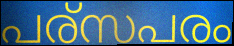
പര്സപരം